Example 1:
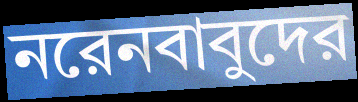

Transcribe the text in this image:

নরেনবাবুদের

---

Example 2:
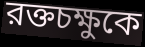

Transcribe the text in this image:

রক্তচক্ষুকে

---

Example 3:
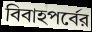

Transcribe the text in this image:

বিবাহপর্বের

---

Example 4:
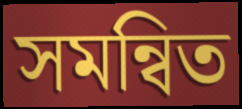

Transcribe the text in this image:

সমন্বিত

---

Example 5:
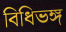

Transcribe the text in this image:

বিধিভঙ্গ